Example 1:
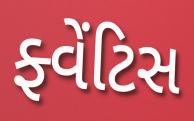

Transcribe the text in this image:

ફ્વેંટિસ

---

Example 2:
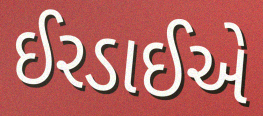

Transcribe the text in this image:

ઈરડાઈએ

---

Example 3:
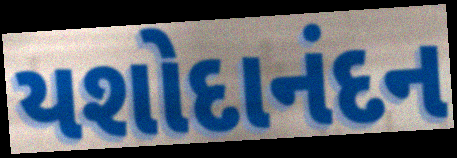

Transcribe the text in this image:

યશોદાનંદન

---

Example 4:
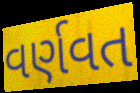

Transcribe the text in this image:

વર્ણવત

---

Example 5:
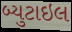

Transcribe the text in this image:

બ્યુટાઇલ